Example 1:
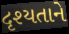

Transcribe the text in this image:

દૃશ્યતાને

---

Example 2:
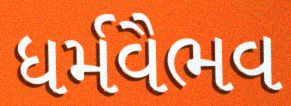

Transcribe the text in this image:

ધર્મવૈભવ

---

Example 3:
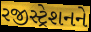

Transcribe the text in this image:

રજીસ્ટ્રેશનને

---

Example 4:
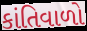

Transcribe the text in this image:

કાંતિવાળો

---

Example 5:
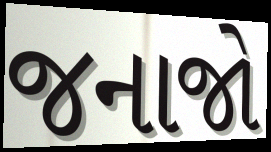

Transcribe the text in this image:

જનાજો